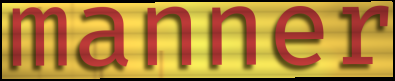
manner